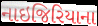
નાઇજિરિયાના